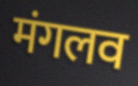
मंगलव